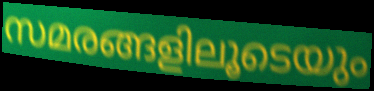
സമരങ്ങളിലൂടെയും